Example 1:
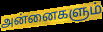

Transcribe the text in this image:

அன்னைகளும்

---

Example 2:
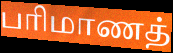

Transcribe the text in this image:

பரிமாணத்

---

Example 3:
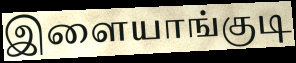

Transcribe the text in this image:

இளையாங்குடி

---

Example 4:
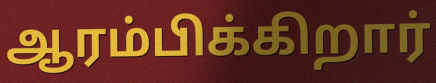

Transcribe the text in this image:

ஆரம்பிக்கிறார்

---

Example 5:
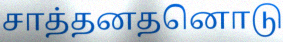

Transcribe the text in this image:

சாத்தனதனொடு